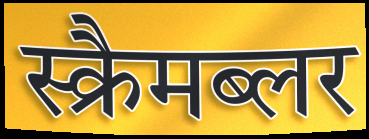
स्क्रैमब्लर